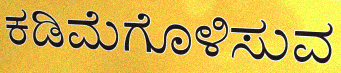
ಕಡಿಮೆಗೊಳಿಸುವ